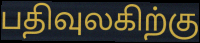
பதிவுலகிற்கு